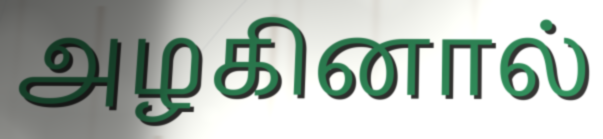
அழகினால்